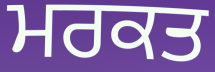
ਮਰਕਤ